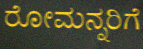
ರೋಮನ್ನರಿಗೆ